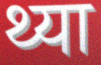
थ्या